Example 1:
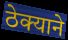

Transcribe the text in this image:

ठेक्याने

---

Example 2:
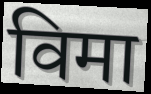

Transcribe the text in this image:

विमा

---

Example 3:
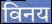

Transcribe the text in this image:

विनय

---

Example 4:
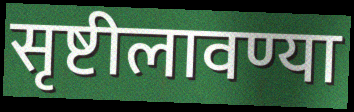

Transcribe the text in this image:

सृष्टीलावण्या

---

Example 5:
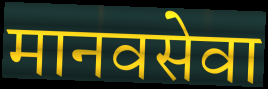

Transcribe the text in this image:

मानवसेवा